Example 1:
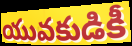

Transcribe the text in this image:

యువకుడికీ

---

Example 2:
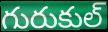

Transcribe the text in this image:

గురుకుల్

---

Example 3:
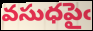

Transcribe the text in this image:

వసుధపైఁ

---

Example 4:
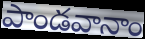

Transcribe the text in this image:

పాండవానాం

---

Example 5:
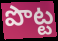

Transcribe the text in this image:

పొట్ట